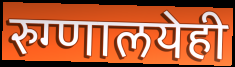
रुग्णालयेही